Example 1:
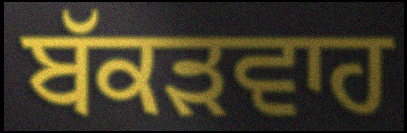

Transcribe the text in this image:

ਬੱਕੜਵਾਹ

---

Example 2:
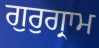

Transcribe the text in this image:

ਗੁਰੁਗ੍ਰਾਮ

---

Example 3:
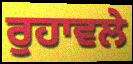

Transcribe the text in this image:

ਰੁਹਾਵਲੇ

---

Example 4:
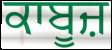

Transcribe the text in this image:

ਕਾਬੂਜ਼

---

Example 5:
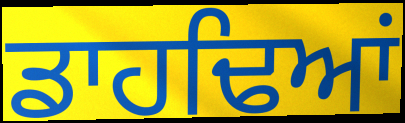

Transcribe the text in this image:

ਡਾਹਢਿਆਂ